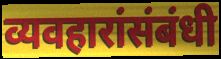
व्यवहारांसंबंधी